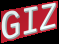
GIZ